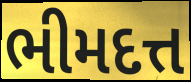
ભીમદત્ત